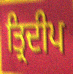
ਤ੍ਰਿਦੀਪ